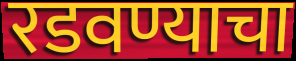
रडवण्याचा